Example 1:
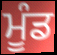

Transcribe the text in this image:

ਮੂੰਡ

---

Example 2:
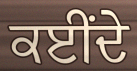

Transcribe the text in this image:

ਕਈਂਦੇ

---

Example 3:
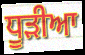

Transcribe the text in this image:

ਧੂੜੀਆ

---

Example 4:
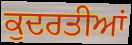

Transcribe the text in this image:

ਕੁਦਰਤੀਆਂ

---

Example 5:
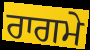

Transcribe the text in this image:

ਰਾਗਮੇ